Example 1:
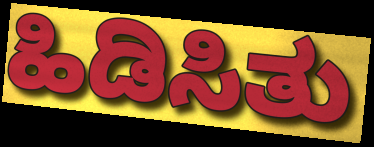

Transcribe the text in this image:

ಹಿಡಿಸಿತು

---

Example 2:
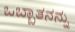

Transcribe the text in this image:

ಒಬ್ಬಾತನನ್ನು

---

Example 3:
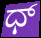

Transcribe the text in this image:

ಧ್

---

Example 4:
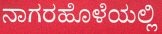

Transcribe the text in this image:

ನಾಗರಹೊಳೆಯಲ್ಲಿ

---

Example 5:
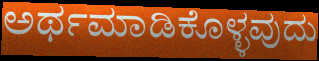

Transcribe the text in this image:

ಅರ್ಥಮಾಡಿಕೊಳ್ಳವುದು